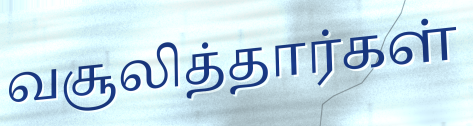
வசூலித்தார்கள்